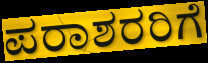
ಪರಾಶರರಿಗೆ